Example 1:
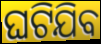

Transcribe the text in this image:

ଘଟିଯିବ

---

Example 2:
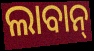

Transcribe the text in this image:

ଲାବାନ୍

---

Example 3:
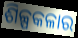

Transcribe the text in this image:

ଶିଳ୍ପକଳାର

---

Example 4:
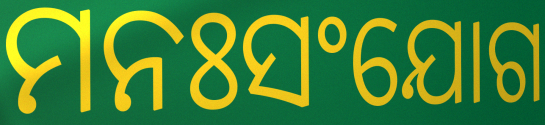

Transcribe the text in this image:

ମନଃସଂଯୋଗ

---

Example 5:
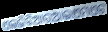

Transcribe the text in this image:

ଏଲଜିବିଆରଆଇଏମଏଚ